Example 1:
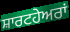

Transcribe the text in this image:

ਸ਼ਾਰਟਹੇਅਰਾਂ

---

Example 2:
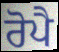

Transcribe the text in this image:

ਰੋਪੈ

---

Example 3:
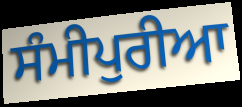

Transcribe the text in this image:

ਸੰਮੀਪੁਰੀਆ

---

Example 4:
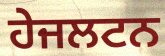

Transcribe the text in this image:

ਹੇਜਲਟਨ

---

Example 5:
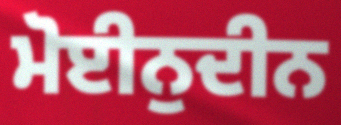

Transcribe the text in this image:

ਮੋਈਨੁਦੀਨ